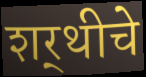
शर्थीचे